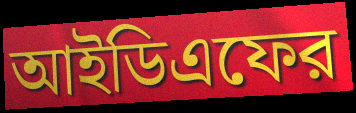
আইডিএফের